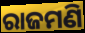
ରାଜମଣି